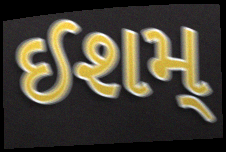
ઈશમ્